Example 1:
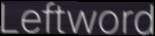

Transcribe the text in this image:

Leftword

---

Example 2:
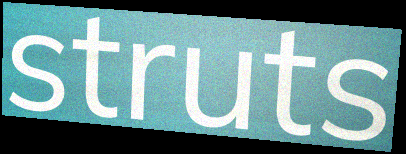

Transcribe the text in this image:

struts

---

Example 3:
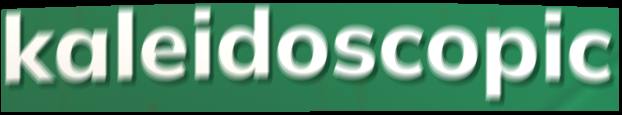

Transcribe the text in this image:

kaleidoscopic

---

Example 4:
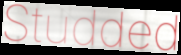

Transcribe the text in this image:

Studded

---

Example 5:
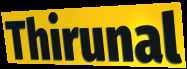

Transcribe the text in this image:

Thirunal